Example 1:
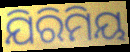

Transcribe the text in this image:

ଯିରିମିୟ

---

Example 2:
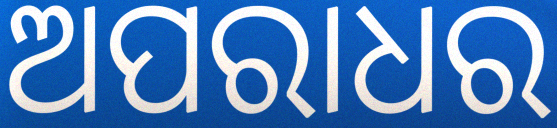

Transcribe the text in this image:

ଅପରାଧର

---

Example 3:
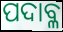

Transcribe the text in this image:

ପଦାବ୍ଳ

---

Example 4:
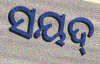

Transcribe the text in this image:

ସୟଦ୍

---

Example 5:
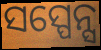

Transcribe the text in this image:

ସସ୍ପେନ୍ସ